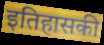
इतिहासकी